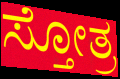
ಸ್ತೋತ್ರ